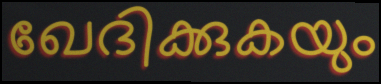
ഖേദിക്കുകയും